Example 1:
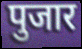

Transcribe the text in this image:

पुजार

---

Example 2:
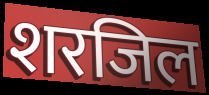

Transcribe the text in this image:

शरजिल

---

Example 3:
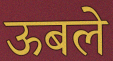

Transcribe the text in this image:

ऊबले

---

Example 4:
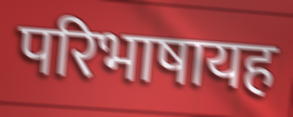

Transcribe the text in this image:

परिभाषायह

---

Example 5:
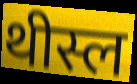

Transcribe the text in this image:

थीस्ल